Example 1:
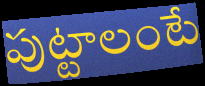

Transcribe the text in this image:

పుట్టాలంటే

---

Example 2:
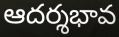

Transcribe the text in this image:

ఆదర్శభావ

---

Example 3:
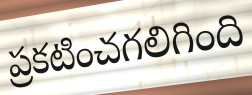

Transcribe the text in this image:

ప్రకటించగలిగింది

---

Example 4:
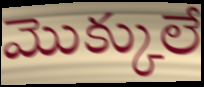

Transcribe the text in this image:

మొక్కులే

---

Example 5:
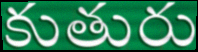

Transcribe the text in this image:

కుతురు